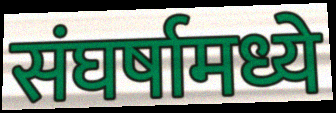
संघर्षामध्ये